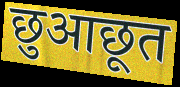
छुआछूत